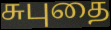
சுபுதை